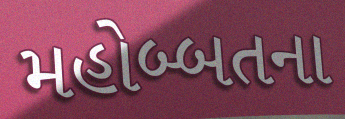
મહોબ્બતના